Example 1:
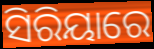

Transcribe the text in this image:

ସିରିୟାରେ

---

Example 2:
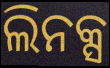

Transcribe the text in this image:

ଲିନକ୍ସ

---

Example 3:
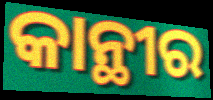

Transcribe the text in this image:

କାନ୍ଥୀର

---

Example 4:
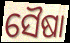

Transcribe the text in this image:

ସୈଷା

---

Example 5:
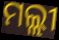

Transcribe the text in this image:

ମଲ୍ଲୀ